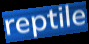
reptile